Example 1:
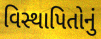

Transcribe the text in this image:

વિસ્થાપિતોનું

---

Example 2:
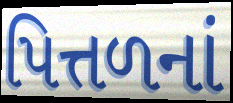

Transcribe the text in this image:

પિત્તળનાં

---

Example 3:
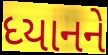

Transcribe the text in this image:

ધ્યાનને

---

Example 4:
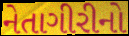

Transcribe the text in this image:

નેતાગીરીનો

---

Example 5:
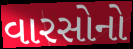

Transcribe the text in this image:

વારસોનો